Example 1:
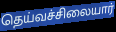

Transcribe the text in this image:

தெய்வச்சிலையார்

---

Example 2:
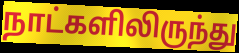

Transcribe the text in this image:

நாட்களிலிருந்து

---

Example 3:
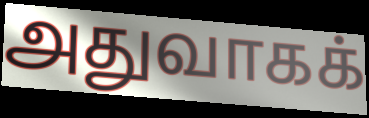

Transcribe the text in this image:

அதுவாகக்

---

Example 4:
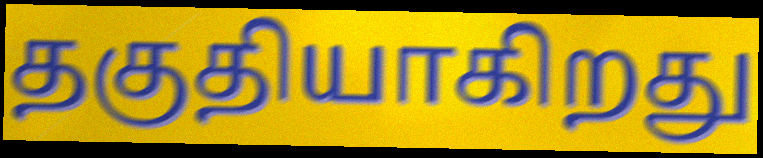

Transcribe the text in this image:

தகுதியாகிறது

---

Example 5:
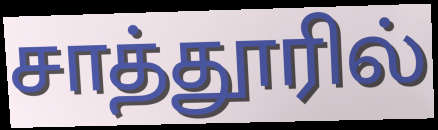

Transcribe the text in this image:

சாத்தூரில்